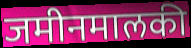
जमीनमालकी